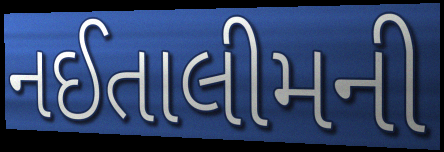
નઈતાલીમની